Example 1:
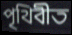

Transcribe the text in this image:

পৃথিবীত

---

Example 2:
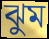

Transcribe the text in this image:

ঝুম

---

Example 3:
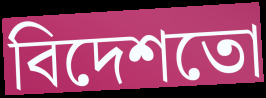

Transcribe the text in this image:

বিদেশতো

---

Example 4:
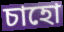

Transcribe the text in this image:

চাহো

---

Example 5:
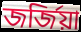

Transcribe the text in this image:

জৰ্জিয়া